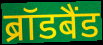
ब्रॉडबैंड